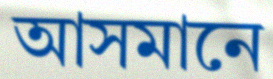
আসমানে